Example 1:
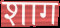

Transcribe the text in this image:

शाग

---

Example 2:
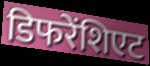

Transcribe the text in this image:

डिफरेंशिएट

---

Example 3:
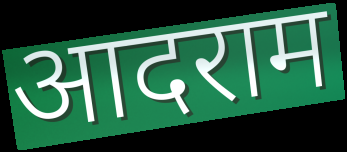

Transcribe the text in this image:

आदराम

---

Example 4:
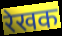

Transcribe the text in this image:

रेखक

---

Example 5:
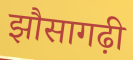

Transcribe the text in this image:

झौसागढ़ी